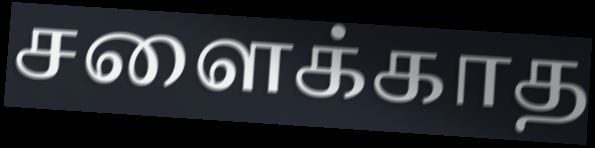
சளைக்காத